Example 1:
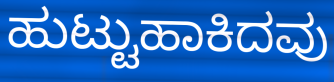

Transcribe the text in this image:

ಹುಟ್ಟುಹಾಕಿದವು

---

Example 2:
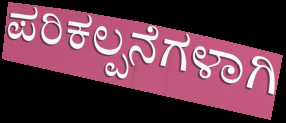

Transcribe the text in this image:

ಪರಿಕಲ್ಪನೆಗಳಾಗಿ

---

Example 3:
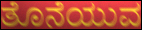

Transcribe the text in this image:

ತೊನೆಯುವ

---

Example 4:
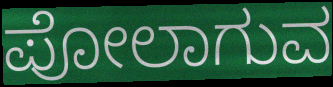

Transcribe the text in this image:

ಪೋಲಾಗುವ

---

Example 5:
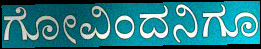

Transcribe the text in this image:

ಗೋವಿಂದನಿಗೂ